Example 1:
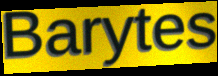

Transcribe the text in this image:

Barytes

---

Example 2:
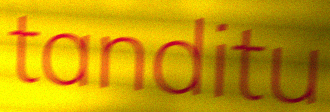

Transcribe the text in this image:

tanditu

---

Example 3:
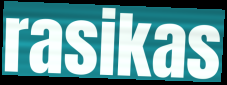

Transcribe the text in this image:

rasikas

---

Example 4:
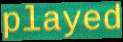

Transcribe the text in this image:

played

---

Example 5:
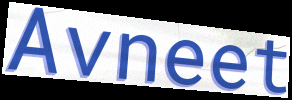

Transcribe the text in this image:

Avneet